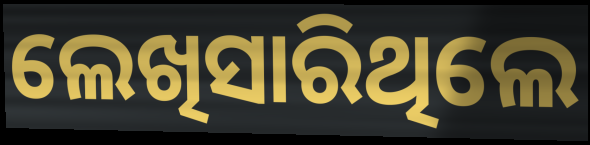
ଲେଖିସାରିଥିଲେ